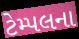
ટેમ્પલના